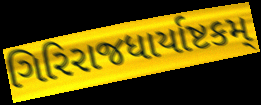
ગિરિરાજધાર્યાષ્ટકમ્